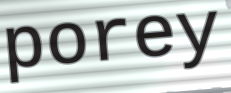
porey